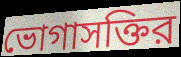
ভোগাসক্তির